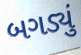
બગડ્યું